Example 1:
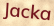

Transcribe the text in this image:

Jacka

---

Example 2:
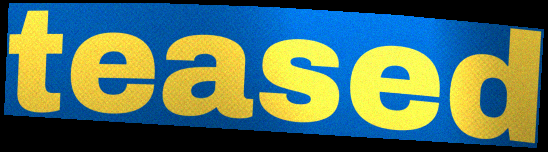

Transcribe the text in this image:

teased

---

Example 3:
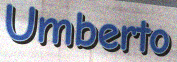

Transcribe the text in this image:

Umberto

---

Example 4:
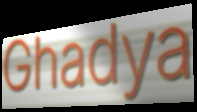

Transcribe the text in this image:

Ghadya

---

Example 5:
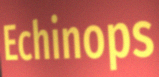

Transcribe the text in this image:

Echinops